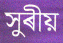
সুৰীয়